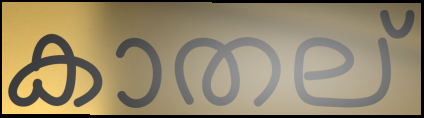
കാതല്